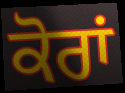
ਕੋਰਾਂ